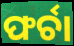
ଫର୍ଚା